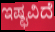
ಇಷ್ಟವಿದೆ